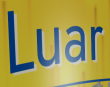
Luar